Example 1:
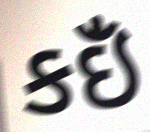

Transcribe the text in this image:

કઇઁં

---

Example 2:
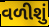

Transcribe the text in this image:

વળીશું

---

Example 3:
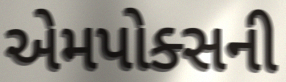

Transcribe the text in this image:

એમપોક્સની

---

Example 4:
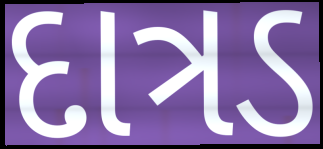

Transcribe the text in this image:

દાત્રડ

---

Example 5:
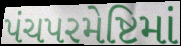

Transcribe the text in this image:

પંચપરમેષ્ટિમાં